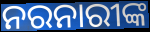
ନରନାରୀଙ୍କ